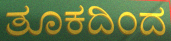
ತೂಕದಿಂದ